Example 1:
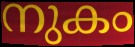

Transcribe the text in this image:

നുകം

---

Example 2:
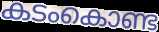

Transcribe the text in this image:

കടംകൊണ്ട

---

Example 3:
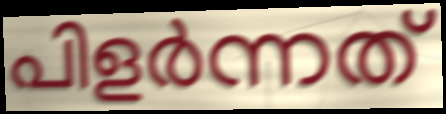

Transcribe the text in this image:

പിളർന്നത്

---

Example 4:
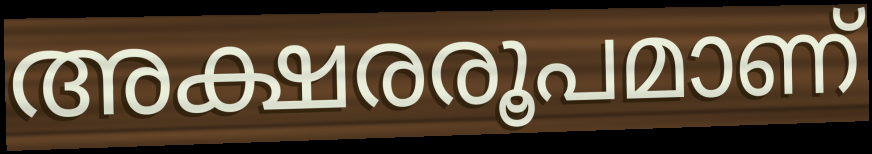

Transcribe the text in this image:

അക്ഷരരൂപമാണ്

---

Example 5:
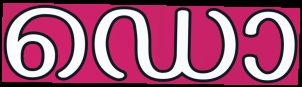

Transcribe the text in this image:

ഡൊ